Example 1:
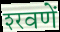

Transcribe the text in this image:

श्रवणें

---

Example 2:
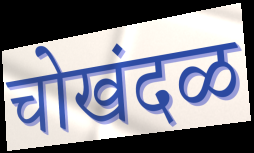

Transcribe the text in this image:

चोखंदळ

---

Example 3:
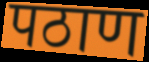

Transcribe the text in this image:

पठाण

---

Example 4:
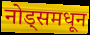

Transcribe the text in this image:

नोड्समधून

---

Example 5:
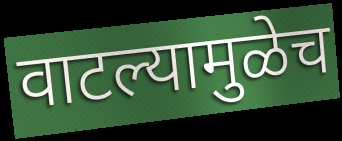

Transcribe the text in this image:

वाटल्यामुळेच